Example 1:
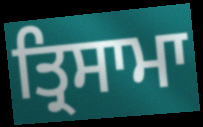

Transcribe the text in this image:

ਤ੍ਰਿਸਾਮਾ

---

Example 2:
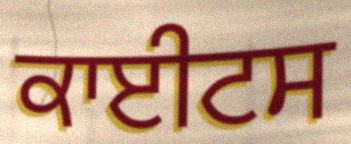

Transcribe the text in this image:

ਕਾਈਟਸ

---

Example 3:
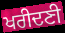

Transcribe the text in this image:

ਖਰੀਦਣੀ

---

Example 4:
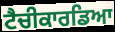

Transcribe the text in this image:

ਟੈਚੀਕਾਰਡਿਆ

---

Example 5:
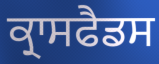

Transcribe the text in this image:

ਕ੍ਰਾਸਫੈਡਸ